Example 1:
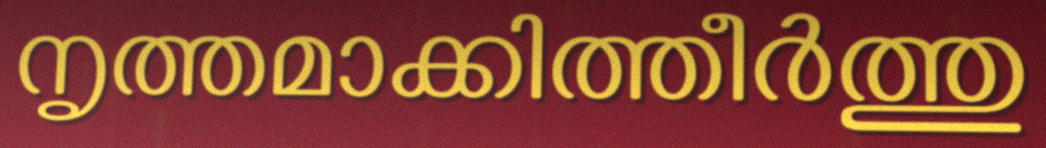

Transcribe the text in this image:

നൃത്തമാക്കിത്തീർത്തു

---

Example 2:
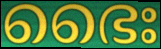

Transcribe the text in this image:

ഭൈഃ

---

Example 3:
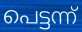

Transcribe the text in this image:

പെട്ടന്ന്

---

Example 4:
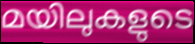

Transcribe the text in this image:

മയിലുകളുടെ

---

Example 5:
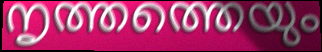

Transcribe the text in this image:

നൃത്തത്തെയും